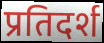
प्रतिदर्श